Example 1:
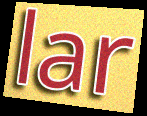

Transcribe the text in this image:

lar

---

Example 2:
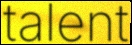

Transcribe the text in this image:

talent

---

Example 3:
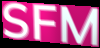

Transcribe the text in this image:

SFM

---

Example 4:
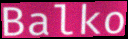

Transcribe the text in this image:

Balko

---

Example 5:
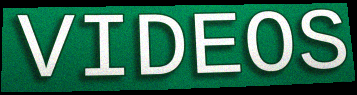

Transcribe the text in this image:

VIDEOS